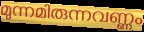
മുന്നമിരുന്നവണ്ണം